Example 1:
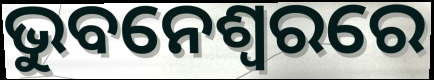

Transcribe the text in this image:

ଭୁବନେଶ୍ଵରରେ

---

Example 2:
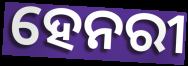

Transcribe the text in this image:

ହେନରୀ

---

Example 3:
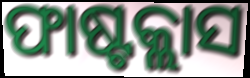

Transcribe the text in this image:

ଫାଷ୍ଟକ୍ଲାସ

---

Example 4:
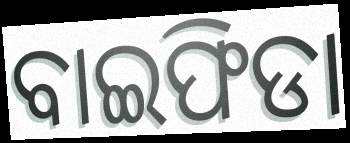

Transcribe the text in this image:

ବାଇଫିଡା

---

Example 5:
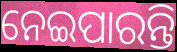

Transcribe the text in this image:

ନେଇପାରନ୍ତି